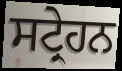
ਸਟ੍ਰੇਹਨ